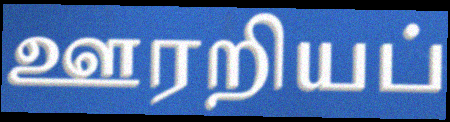
ஊரறியப்